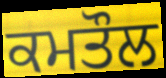
ਕਮਤੌਲ